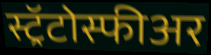
स्ट्रॅटोस्फीअर